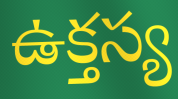
ఉక్తస్య